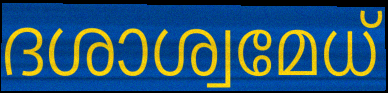
ദശാശ്വമേധ്